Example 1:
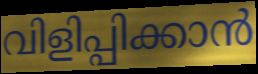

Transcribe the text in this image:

വിളിപ്പിക്കാൻ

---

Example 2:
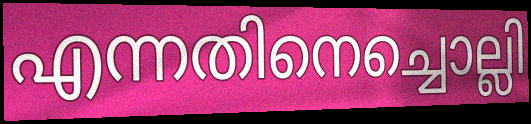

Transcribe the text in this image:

എന്നതിനെച്ചൊല്ലി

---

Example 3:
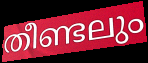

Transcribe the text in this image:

തീണ്ടലും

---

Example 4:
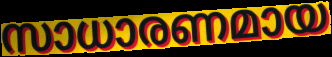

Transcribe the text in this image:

സാധാരണമായ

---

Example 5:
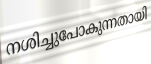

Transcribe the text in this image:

നശിച്ചുപോകുന്നതായി